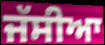
ਜੱਸੀਆ